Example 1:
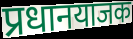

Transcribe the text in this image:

प्रधानयाजक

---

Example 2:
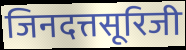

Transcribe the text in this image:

जिनदत्तसूरिजी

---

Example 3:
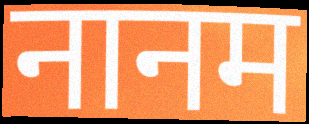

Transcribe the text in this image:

नानम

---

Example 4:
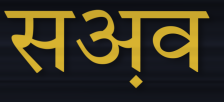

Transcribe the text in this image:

सअ़व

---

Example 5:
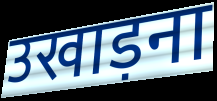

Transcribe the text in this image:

उखाड़ना